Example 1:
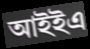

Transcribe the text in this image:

আইইএ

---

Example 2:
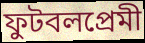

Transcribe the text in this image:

ফুটবলপ্রেমী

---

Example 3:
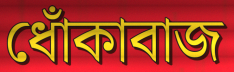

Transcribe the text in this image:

ধোঁকাবাজ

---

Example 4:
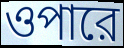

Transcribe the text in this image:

ওপারে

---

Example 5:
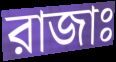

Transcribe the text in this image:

রাজাঃ